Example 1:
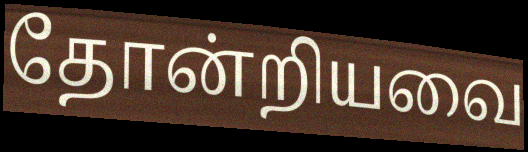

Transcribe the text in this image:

தோன்றியவை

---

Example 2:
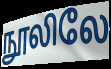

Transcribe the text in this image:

நூலிலே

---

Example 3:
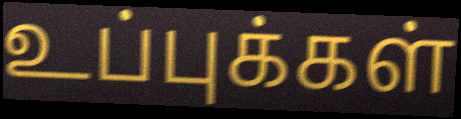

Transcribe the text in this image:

உப்புக்கள்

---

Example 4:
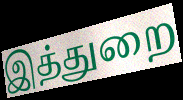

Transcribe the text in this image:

இத்துறை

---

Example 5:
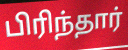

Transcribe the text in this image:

பிரிந்தார்